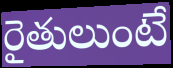
రైతులుంటే